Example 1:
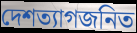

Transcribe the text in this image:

দেশত্যাগজনিত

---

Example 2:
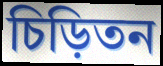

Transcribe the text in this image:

চিড়িতন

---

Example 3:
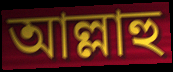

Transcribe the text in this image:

আল্লাহু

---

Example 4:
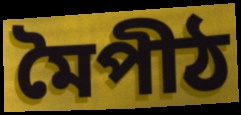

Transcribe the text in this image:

মৈপীঠ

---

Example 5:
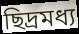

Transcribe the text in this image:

ছিদ্রমধ্য